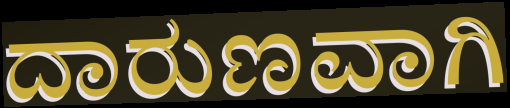
ದಾರುಣವಾಗಿ